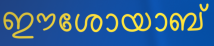
ഈശോയാബ്